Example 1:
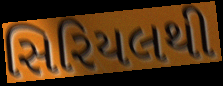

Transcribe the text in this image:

સિરિયલથી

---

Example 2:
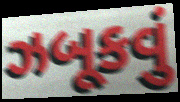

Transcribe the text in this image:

ઝબૂકવું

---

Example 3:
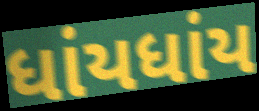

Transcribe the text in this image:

ધાંયધાંય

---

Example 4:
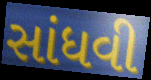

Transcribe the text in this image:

સાંધવી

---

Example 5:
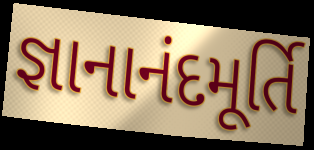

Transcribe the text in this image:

જ્ઞાનાનંદમૂર્તિ